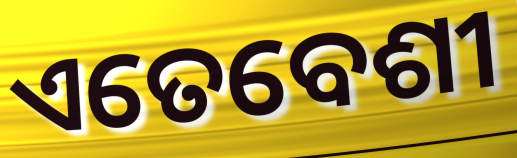
ଏତେବେଶୀ